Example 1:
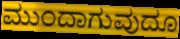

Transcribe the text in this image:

ಮುಂದಾಗುವುದೂ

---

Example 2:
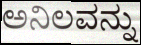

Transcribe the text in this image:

ಅನಿಲವನ್ನು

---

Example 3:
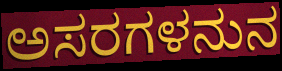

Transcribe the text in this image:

ಅಸರಗಳನುನ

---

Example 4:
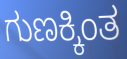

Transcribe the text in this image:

ಗುಣಕ್ಕಿಂತ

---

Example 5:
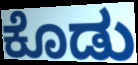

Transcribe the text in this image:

ಕೊಡು